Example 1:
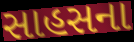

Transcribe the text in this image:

સાહસના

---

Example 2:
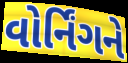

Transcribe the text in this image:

વોર્નિંગને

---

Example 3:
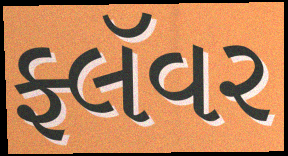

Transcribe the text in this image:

ફ્લૅવર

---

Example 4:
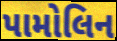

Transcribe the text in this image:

પામોલિન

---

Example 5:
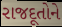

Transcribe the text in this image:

રાજદૂતોને